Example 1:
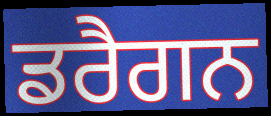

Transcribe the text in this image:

ਡਰੈਗਨ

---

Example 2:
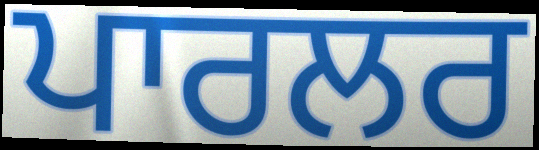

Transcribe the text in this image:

ਪਾਰਲਰ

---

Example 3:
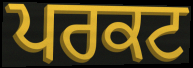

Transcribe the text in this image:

ਪਰਕਟ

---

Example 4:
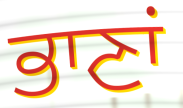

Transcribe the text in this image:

ਭਾਣਾਂ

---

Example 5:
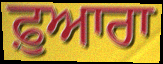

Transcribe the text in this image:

ਫ਼ੁਆਰਾ